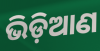
ଭିଡ଼ିଆଣ